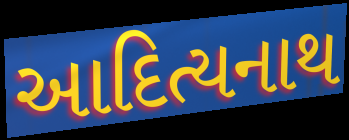
આદિત્યનાથ